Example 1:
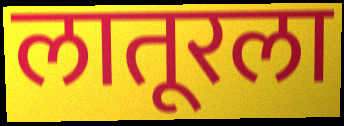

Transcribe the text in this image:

लातूरला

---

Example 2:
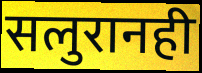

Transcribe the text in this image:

सलुरानही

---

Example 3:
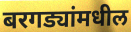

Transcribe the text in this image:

बरगड्यांमधील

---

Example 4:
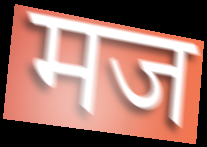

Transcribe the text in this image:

मज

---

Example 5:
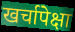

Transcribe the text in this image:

खर्चापेक्षा